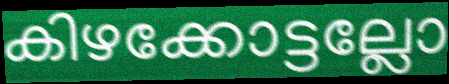
കിഴക്കോട്ടല്ലോ